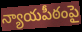
న్యాయపీఠంపై